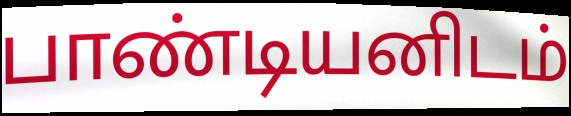
பாண்டியனிடம்